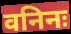
वनिनः